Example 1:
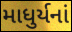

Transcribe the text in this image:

માધુર્યનાં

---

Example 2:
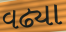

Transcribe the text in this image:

વઢ્યા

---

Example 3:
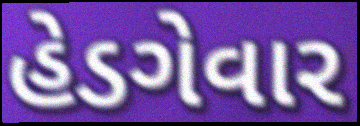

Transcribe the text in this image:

હેડગેવાર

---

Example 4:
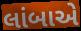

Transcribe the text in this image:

લાંબાએ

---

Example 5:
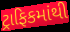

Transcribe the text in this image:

ટ્રાફિકમાંથી